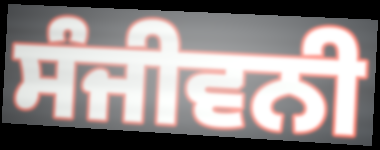
ਸੰਜੀਵਨੀ